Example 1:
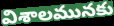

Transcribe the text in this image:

విశాలమునకు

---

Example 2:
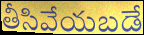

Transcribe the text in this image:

తీసివేయబడే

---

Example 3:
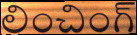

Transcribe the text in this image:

లించింగ్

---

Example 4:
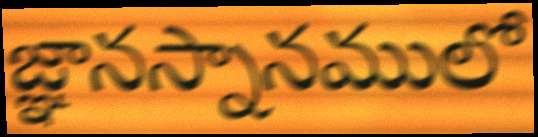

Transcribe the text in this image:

జ్ఞానస్నానములో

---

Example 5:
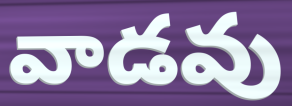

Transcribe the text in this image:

వాడవు